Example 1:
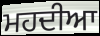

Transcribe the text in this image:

ਮਹਦੀਆ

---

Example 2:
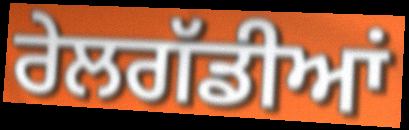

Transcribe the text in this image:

ਰੇਲਗੱਡੀਆਂ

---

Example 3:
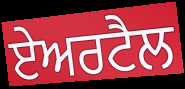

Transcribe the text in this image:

ਏਅਰਟੈਲ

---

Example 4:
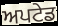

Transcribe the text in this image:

ਅਪਟੇਡ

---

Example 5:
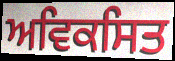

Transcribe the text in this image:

ਅਵਿਕਸਿਤ